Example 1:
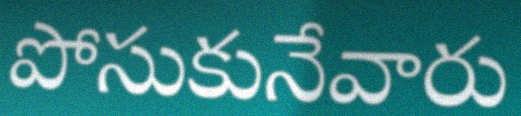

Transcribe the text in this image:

పోసుకునేవారు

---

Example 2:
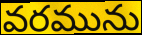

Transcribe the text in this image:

వరమును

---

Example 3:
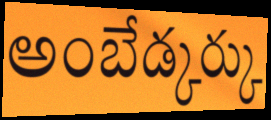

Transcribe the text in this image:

అంబేడ్కర్కు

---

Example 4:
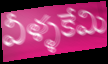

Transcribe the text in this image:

వీళ్ళకేమి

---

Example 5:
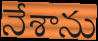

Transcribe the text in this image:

నేశాను